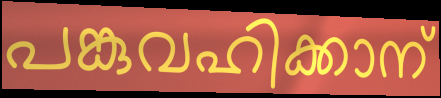
പങ്കുവഹിക്കാന്